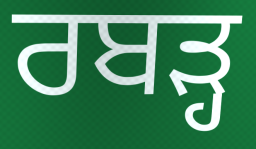
ਰਬੜ੍ਹ